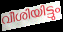
വീശിയിട്ടും